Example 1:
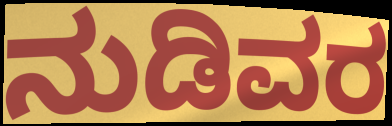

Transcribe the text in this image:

ನುಡಿವರ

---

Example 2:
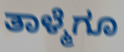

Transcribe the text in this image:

ತಾಳ್ಮೆಗೂ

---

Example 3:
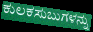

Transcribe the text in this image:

ಕುಲಕಸುಬುಗಳನ್ನು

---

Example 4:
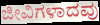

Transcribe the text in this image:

ಜೀವಿಗಳಾದವು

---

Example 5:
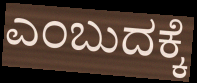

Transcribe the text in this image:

ಎಂಬುದಕ್ಕೆ